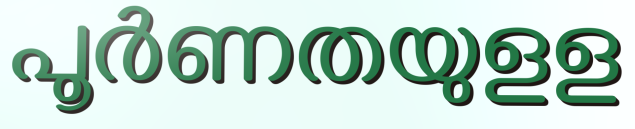
പൂർണതയുളള